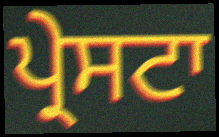
ਪ੍ਰੇਸਟਾ